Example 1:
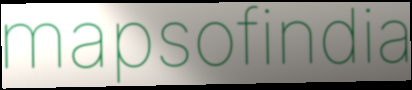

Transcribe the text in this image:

mapsofindia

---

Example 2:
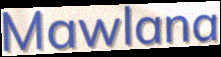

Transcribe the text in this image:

Mawlana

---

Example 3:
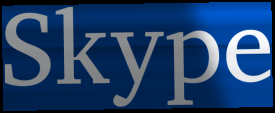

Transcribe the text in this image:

Skype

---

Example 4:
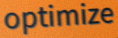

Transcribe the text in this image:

optimize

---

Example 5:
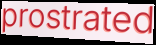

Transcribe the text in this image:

prostrated